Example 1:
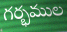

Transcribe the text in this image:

గర్భముల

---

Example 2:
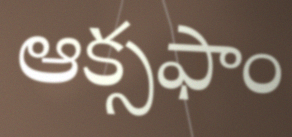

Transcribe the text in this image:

ఆక్సఫాం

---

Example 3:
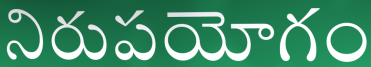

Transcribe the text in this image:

నిరుపయోగం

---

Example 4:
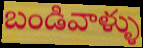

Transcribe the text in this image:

బండివాళ్ళు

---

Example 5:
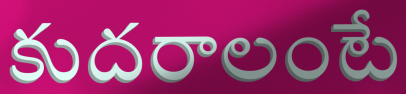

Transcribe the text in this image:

కుదరాలంటే